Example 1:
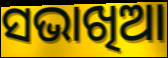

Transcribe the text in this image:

ସଭାଖିଆ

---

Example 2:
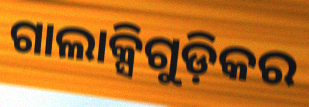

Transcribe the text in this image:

ଗାଲାକ୍ସିଗୁଡ଼ିକର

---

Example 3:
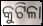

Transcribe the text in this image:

କୁଟିଳା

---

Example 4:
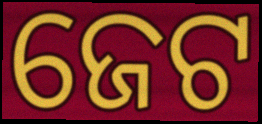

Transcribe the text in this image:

ଜେଟ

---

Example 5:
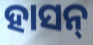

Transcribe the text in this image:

ହାସନ୍